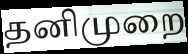
தனிமுறை